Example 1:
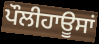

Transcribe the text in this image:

ਪੌਲੀਹਾਊਸਾਂ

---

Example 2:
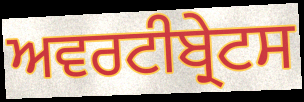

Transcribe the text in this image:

ਅਵਰਟੀਬ੍ਰੇਟਸ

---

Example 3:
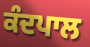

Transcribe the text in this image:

ਕੰਦਪਾਲ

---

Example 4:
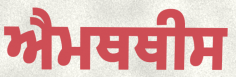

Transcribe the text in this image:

ਐਮਥਥੀਸ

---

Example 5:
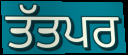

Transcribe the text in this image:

ਤੱਤਪਰ